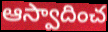
ఆస్వాదించ